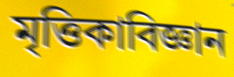
মৃত্তিকাবিজ্ঞান